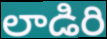
లాడిరి